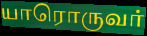
யாரொருவர்